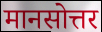
मानसोत्तर